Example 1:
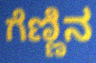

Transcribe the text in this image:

ಗೆಣ್ಣಿನ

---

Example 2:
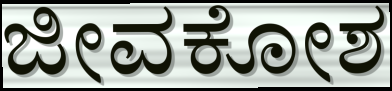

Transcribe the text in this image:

ಜೀವಕೋಶ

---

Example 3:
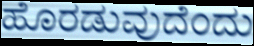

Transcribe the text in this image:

ಹೊರಡುವುದೆಂದು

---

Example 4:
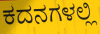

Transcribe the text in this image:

ಕದನಗಳಲ್ಲಿ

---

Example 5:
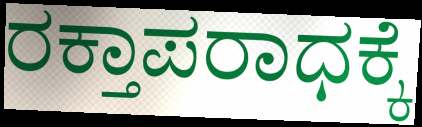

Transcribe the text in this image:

ರಕ್ತಾಪರಾಧಕ್ಕೆ